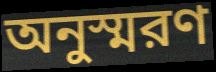
অনুস্মরণ